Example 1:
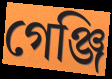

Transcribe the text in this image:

গেঞ্জি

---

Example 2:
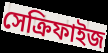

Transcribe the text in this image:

সেক্রিফাইজ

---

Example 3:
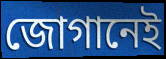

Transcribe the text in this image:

জোগানেই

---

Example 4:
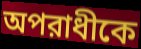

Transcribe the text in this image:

অপরাধীকে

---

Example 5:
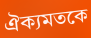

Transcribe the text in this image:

ঐক্যমতকে